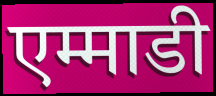
एम्माडी